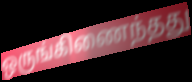
ஒருங்கிணைந்தது